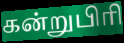
கன்றுபிரி